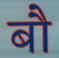
बौ